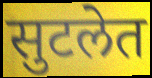
सुटलेत